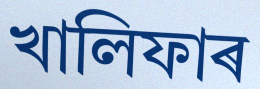
খালিফাৰ